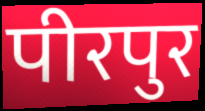
पीरपुर